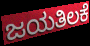
ಜಯತಿಲಕೆ